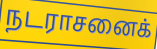
நடராசனைக்